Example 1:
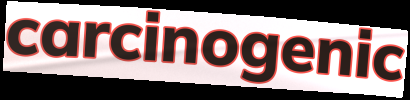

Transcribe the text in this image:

carcinogenic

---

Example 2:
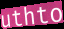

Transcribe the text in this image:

uthto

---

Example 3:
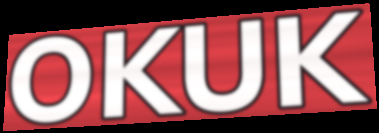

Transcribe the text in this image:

OKUK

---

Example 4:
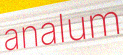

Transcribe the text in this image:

analum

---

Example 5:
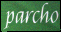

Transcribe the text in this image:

parcho